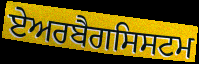
ਏਅਰਬੈਗਸਿਸਟਮ